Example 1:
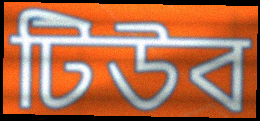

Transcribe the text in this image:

টিউব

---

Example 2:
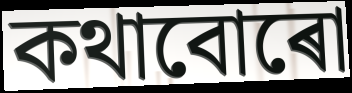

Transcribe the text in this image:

কথাবোৰো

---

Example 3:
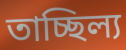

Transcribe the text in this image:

তাচ্ছিল্য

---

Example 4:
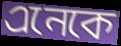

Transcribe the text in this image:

এনেকে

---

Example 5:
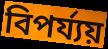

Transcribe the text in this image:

বিপৰ্য্যয়